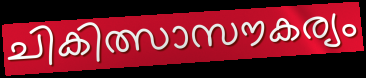
ചികിത്സാസൗകര്യം